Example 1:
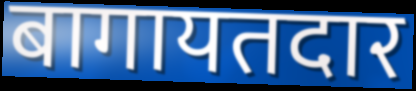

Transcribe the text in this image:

बागायतदार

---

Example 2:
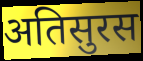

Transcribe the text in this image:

अतिसुरस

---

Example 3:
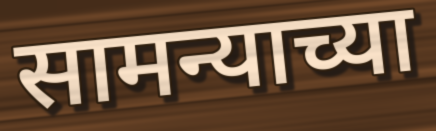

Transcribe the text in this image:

सामन्याच्या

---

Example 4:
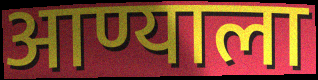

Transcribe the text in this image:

आण्याला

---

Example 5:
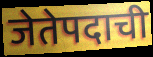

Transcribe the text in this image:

जेतेपदाची